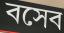
বসেব